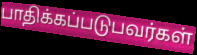
பாதிக்கப்படுபவர்கள்